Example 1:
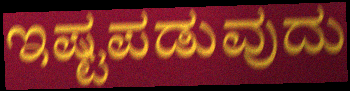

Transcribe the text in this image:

ಇಷ್ಟಪಡುವುದು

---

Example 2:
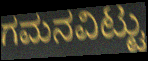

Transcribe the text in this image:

ಗಮನವಿಟ್ಟು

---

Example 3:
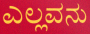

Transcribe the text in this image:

ಎಲ್ಲವನು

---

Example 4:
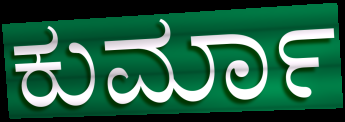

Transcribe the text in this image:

ಕುರ್ಮಾ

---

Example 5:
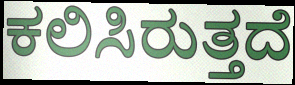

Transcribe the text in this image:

ಕಲಿಸಿರುತ್ತದೆ